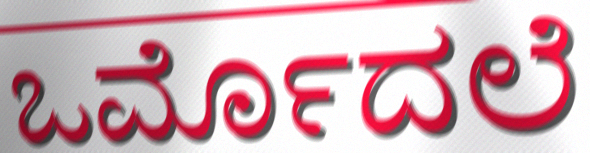
ಒರ್ಮೊದಲೆ